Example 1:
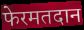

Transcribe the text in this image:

फेरमतदान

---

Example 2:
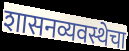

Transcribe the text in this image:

शासनव्यवस्थेचा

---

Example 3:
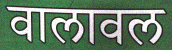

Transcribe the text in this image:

वालावल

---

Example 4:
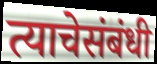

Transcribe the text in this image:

त्याचेसंबंधी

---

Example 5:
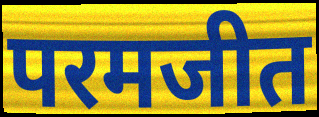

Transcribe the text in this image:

परमजीत